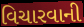
વિચારવાની